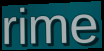
rime